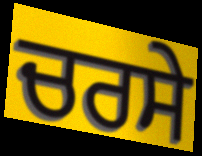
ਚਰਸੇ